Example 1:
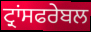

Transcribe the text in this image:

ਟ੍ਰਾਂਸਫਰੇਬਲ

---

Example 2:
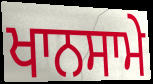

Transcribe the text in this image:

ਖਾਨਸਾਮੇ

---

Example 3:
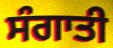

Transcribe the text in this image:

ਸੰਗਾਤੀ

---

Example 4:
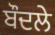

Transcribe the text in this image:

ਬੌਦਲੇ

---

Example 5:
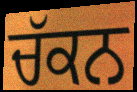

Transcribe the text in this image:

ਚੱਕਨ